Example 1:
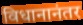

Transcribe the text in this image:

विधानानंतर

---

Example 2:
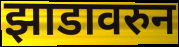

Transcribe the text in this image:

झाडावरुन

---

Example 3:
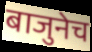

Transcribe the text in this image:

बाजुनेच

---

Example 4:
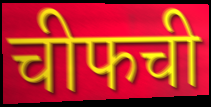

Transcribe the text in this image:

चीफची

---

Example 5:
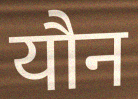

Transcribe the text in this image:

यौन